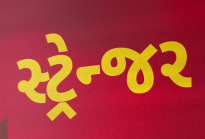
સ્ટ્રેન્જર